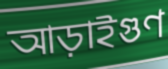
আড়াইগুণ